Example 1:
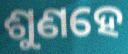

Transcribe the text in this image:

ଶୁଣହେ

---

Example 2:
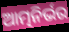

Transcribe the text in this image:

ଆତ୍ମନିର୍ଭର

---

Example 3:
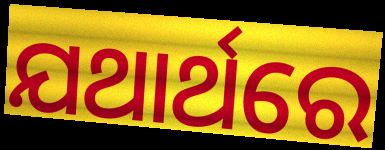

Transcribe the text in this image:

ଯଥାର୍ଥରେ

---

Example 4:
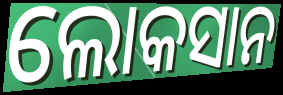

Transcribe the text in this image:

ଲୋକସାନ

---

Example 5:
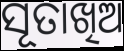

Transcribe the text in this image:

ସୂତାଖିଅ